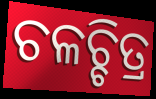
ଚଳଚ୍ଚିତ୍ର